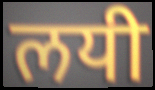
लयी